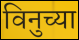
विनुच्या